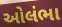
ઓલંભા